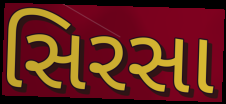
સિરસા